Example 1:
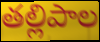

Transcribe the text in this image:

తల్లిపాల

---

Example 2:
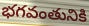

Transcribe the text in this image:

భగవంతునికి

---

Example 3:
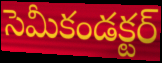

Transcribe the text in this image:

సెమీకండక్టర్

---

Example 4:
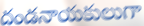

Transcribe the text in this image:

దండనాయకులుగా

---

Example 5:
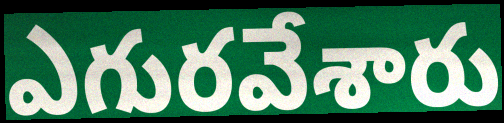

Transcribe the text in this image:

ఎగురవేశారు